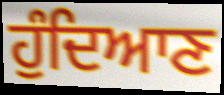
ਹੁੰਦਿਆਣ